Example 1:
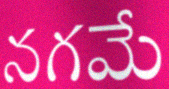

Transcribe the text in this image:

నగమే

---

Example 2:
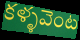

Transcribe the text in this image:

కళ్ళవెంట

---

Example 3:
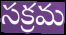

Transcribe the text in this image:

సక్రమ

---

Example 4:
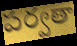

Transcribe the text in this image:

పర్వతా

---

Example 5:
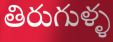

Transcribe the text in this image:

తిరుగుళ్ళ